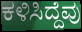
ಕಳಿಸಿದ್ದೆವು